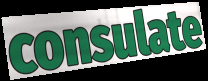
consulate